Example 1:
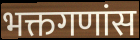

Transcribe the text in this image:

भक्तगणांस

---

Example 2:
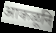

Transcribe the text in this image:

आकळूनि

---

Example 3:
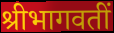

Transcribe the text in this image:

श्रीभागवतीं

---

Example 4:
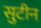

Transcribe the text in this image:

सुटीन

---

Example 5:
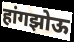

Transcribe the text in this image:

हांगझोऊ